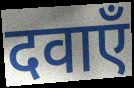
दवाएँ